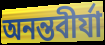
অনন্তবীর্যা